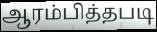
ஆரம்பித்தபடி